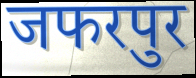
जफरपुर